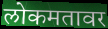
लोकमतावर